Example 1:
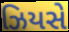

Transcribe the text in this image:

ઝિયસે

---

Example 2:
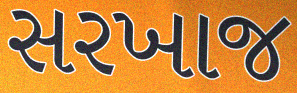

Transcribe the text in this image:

સરખાજ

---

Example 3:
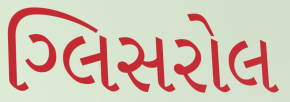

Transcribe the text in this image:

ગ્લિસરોલ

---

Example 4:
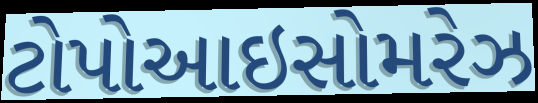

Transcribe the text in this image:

ટોપોઆઇસોમરેઝ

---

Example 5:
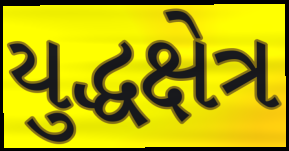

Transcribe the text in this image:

યુદ્ધક્ષેત્ર